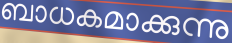
ബാധകമാക്കുന്നു